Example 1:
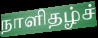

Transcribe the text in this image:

நாளிதழ்ச்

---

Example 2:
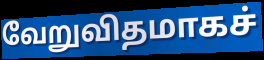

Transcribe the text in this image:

வேறுவிதமாகச்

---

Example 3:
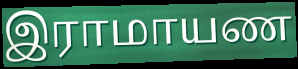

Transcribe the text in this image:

இராமாயண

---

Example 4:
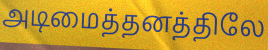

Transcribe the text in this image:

அடிமைத்தனத்திலே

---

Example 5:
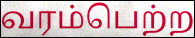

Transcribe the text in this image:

வரம்பெற்ற